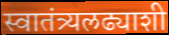
स्वातंत्र्यलढ्याशी